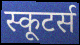
स्कूटर्स